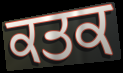
ਕਤਕ